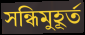
সন্ধিমুহূর্ত